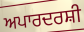
ਅਪਾਰਦਰਸ਼ੀ